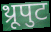
थ्रूपुट